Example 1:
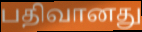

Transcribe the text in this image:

பதிவானது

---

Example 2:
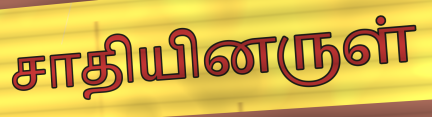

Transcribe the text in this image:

சாதியினருள்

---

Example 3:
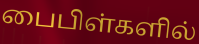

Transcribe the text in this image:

பைபிள்களில்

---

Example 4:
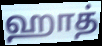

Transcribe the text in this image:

ஹாத்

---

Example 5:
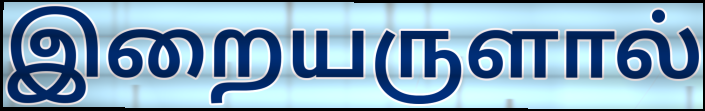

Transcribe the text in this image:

இறையருளால்